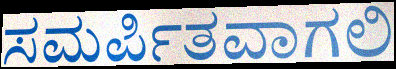
ಸಮರ್ಪಿತವಾಗಲಿ